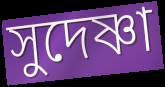
সুদেষ্ণা